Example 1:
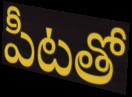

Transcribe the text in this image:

పీటతో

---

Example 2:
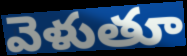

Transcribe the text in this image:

వెళుతూ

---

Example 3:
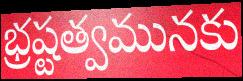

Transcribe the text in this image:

భ్రష్టత్వమునకు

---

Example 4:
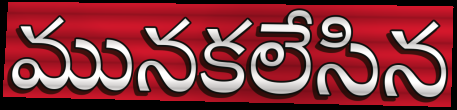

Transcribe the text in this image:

మునకలేసిన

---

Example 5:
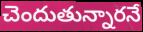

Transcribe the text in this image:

చెందుతున్నారనే